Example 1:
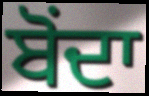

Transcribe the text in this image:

ਬੋੰਦਾ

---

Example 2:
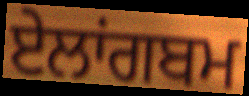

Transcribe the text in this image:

ਏਲਾਂਗਬਮ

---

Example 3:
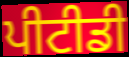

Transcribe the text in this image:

ਪੀਟੀਡੀ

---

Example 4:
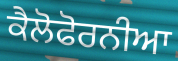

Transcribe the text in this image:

ਕੈਲੋਫੋਰਨੀਆ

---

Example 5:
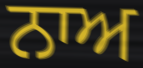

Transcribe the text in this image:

ਨਾਅ